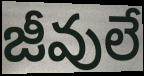
జీవులే